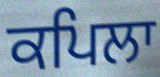
ਕਪਿਲਾ